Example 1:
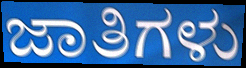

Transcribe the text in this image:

ಜಾತಿಗಳು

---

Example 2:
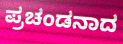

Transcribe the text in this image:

ಪ್ರಚಂಡನಾದ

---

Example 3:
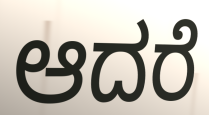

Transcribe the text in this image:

ಆದರೆ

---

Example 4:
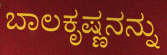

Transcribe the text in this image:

ಬಾಲಕೃಷ್ಣನನ್ನು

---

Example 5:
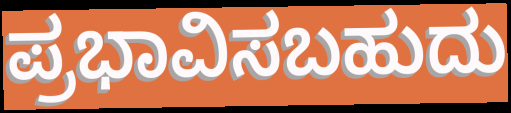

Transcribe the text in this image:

ಪ್ರಭಾವಿಸಬಹುದು